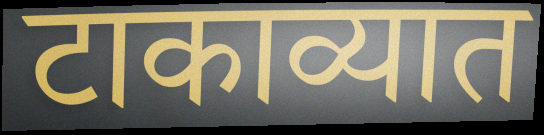
टाकाव्यात